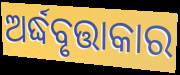
ଅର୍ଦ୍ଧବୃତ୍ତାକାର